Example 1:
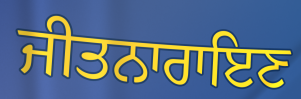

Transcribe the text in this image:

ਜੀਤਨਾਰਾਇਣ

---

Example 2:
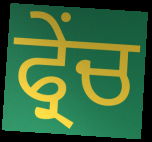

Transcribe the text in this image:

ਫ੍ਰੇੰਚ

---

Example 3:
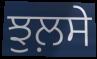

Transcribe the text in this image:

ਝੁਲ਼ਸੇ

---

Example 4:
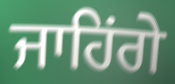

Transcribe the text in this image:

ਜਾਹਿਂਗੇ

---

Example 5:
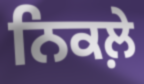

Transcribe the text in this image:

ਨਿਕਲ਼ੇ